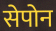
सेपोन